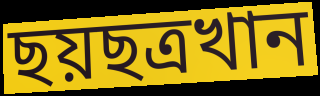
ছয়ছত্রখান